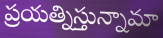
ప్రయత్నిస్తున్నామా